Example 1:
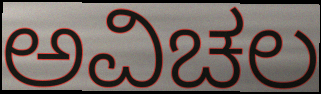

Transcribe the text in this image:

ಅವಿಚಲ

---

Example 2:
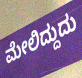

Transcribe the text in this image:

ಮೇಲಿದ್ದುದು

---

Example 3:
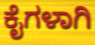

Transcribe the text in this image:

ಕೈಗಳಾಗಿ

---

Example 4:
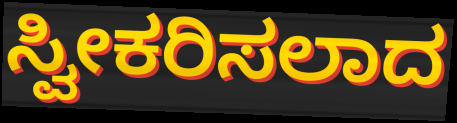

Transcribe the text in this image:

ಸ್ವೀಕರಿಸಲಾದ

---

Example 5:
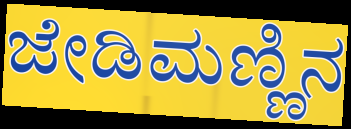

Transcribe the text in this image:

ಜೇಡಿಮಣ್ಣಿನ